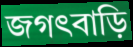
জগৎবাড়ি